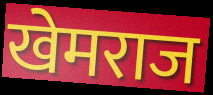
खेमराज